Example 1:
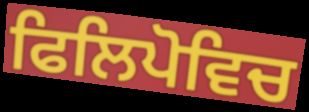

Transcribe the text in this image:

ਫਿਲਿਪੋਵਿਚ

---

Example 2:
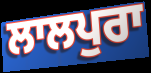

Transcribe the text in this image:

ਲਾਲਪੁਰਾ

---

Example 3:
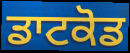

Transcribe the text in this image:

ਡਾਟਕੋਡ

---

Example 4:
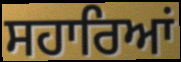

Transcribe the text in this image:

ਸਹਾਰਿਆਂ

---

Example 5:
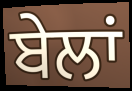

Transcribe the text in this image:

ਬੇਲਾਂ